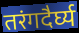
तरंगदैर्घ्य